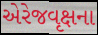
એરેજવૃક્ષના